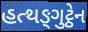
હત્થઙ્ગુટ્ઠેન